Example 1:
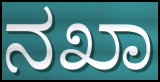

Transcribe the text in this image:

ನಖಾ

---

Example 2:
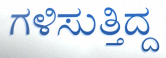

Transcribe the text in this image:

ಗಳಿಸುತ್ತಿದ್ದ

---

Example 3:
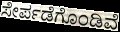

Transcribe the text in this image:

ಸೇರ್ಪಡೆಗೊಂಡಿವೆ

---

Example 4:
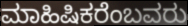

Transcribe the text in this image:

ಮಾಹಿಷಿಕರೆಂಬವರು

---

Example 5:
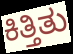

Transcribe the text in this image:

ಕಿತ್ತಿತು